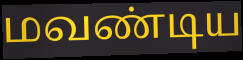
மவண்டிய